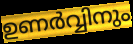
ഉണർവ്വിനും